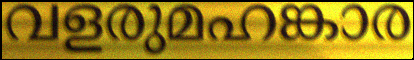
വളരുമഹങ്കാര